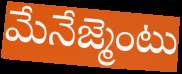
మేనేజ్మెంటు